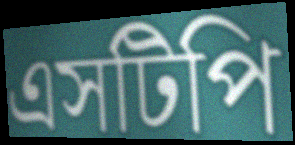
এসটিপি